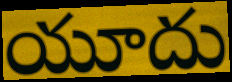
యూదు